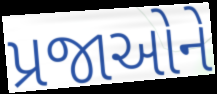
પ્રજાઓને